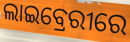
ଲାଇବ୍ରେରୀରେ